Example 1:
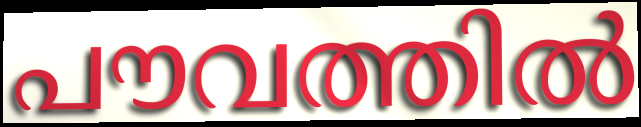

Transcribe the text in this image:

പൗവത്തിൽ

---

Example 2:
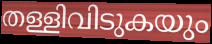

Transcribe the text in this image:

തള്ളിവിടുകയും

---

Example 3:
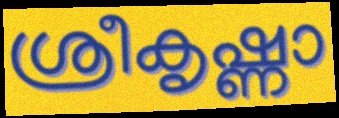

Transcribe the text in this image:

ശ്രീകൃഷ്ണാ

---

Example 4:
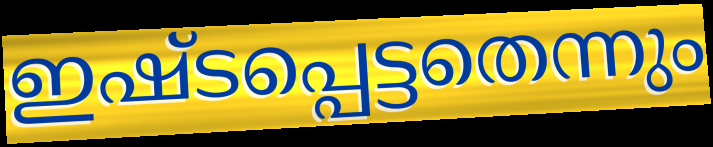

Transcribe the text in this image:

ഇഷ്ടപ്പെട്ടതെന്നും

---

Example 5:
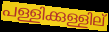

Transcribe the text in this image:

പള്ളിക്കുള്ളില്